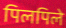
पिलपिले